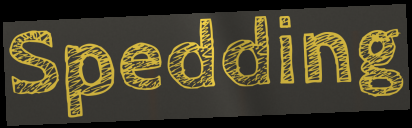
Spedding